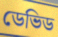
ডেভিড